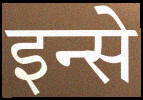
इन्से